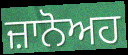
ਜ਼ਾਨੋਅਹ